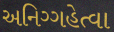
અનિગ્ગહેત્વા